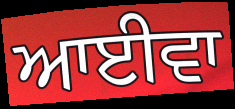
ਆਈਵਾ